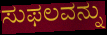
ಸುಫಲವನ್ನು